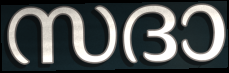
സദാ